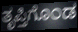
ತೃಪ್ತಿಗೊಂಡ